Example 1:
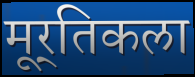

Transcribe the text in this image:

मूर्तिकला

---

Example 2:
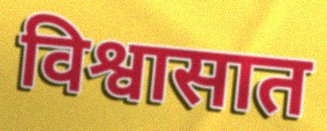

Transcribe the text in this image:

विश्वासात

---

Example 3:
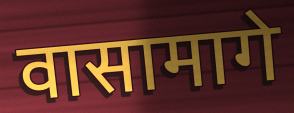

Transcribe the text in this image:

वासामागे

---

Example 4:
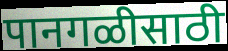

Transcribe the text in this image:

पानगळीसाठी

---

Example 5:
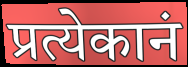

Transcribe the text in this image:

प्रत्येकानं